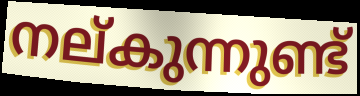
നല്കുന്നുണ്ട്